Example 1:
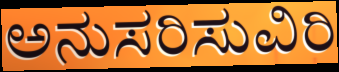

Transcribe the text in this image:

ಅನುಸರಿಸುವಿರಿ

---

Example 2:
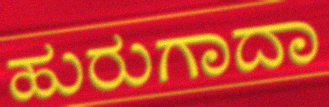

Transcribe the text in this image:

ಹುರುಗಾದಾ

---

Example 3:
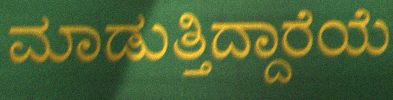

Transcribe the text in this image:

ಮಾಡುತ್ತಿದ್ದಾರೆಯೆ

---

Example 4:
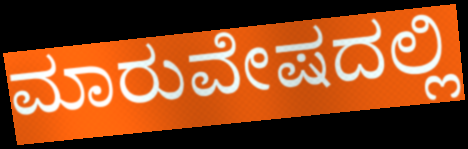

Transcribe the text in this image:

ಮಾರುವೇಷದಲ್ಲಿ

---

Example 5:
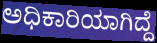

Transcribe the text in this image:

ಅಧಿಕಾರಿಯಾಗಿದ್ದೆ